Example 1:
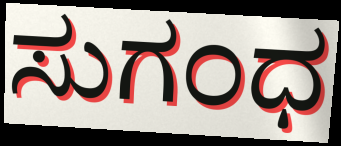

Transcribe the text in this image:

ಸುಗಂಧ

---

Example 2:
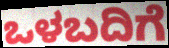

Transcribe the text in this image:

ಒಳಬದಿಗೆ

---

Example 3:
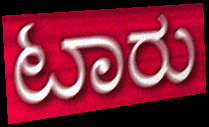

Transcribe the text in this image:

ಟಾರು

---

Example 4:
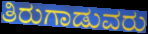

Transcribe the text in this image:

ತಿರುಗಾಡುವರು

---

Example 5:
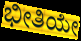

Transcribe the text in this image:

ಭೀತಿಯೇ